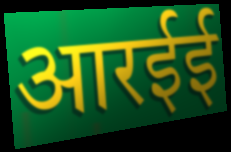
आरईई